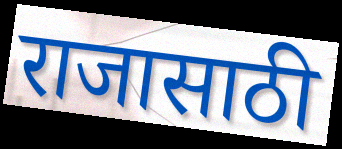
राजासाठी